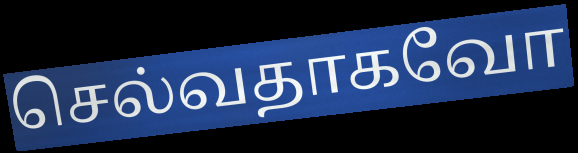
செல்வதாகவோ